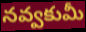
నవ్వకుమీ